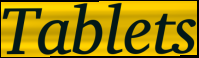
Tablets